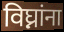
विघ्नांना